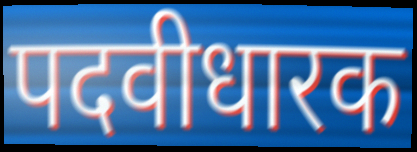
पदवीधारक